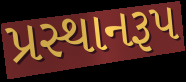
પ્રસ્થાનરૂપ